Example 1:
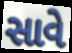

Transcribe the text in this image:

સાવે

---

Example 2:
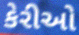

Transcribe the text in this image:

કેરીઓ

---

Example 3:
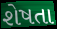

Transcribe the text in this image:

શેષતા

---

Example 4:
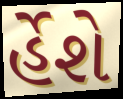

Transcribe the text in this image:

ર્હેશે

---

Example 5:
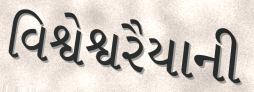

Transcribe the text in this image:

વિશ્વેશ્વરૈયાની